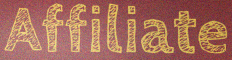
Affiliate